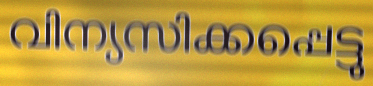
വിന്യസിക്കപ്പെട്ടു